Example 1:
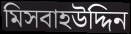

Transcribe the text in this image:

মিসবাহউদ্দিন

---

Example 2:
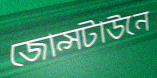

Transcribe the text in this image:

জোন্সটাউনে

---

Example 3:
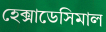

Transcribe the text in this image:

হেক্সাডেসিমাল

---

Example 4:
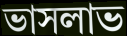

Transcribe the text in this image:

ভাসলাভ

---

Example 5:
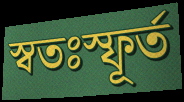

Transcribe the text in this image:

স্বতঃস্ফূর্ত